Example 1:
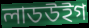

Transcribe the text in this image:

লাডউইগ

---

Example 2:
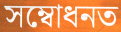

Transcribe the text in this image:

সম্বোধনত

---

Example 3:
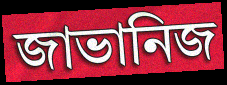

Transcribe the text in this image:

জাভানিজ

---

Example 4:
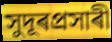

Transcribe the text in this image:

সুদূৰপ্ৰসাৰী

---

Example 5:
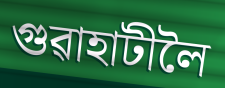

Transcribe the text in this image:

গুৱাহাটীলৈ